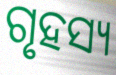
ଗୃହସ୍ୟ